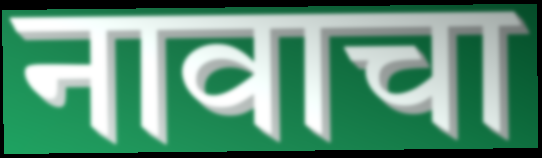
नावाचा